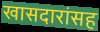
खासदारांसह